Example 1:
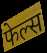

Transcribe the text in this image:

फेल्स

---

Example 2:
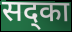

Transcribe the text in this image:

सद्का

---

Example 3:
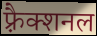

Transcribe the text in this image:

फ़्रैक्शनल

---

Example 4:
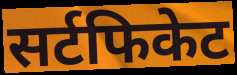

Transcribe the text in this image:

सर्टफिकेट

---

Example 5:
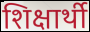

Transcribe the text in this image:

शिक्षार्थी